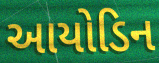
આયોડિન